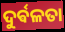
ଦୁର୍ଵଳତା